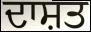
ਦਾਸ਼ਤ